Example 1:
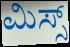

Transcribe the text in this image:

ಮಿಸ್ಸ್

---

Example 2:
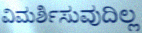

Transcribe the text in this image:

ವಿಮರ್ಶಿಸುವುದಿಲ್ಲ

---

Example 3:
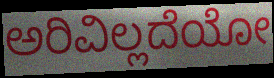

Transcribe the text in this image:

ಅರಿವಿಲ್ಲದೆಯೋ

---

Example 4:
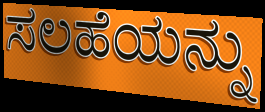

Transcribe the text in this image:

ಸಲಹೆಯನ್ನು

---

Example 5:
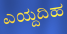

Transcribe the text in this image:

ಎಯ್ದದಿಹ